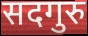
सदगुरु